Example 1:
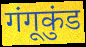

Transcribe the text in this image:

गंगूकुंड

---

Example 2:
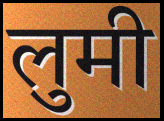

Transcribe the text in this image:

लुमी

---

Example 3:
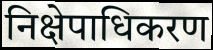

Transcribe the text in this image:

निक्षेपाधिकरण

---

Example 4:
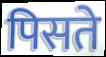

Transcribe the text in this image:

पिसते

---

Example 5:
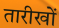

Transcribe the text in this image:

तारीखों